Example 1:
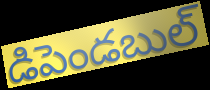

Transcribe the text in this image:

డిపెండబుల్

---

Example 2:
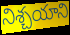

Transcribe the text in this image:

నిశ్చయాని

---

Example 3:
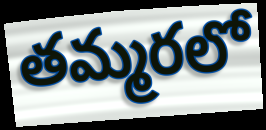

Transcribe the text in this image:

తమ్మరలో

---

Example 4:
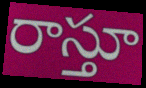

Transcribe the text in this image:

రాస్తూ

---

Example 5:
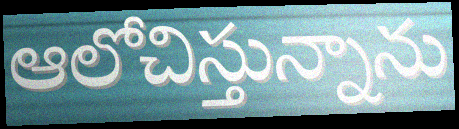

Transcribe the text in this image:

ఆలోచిస్తున్నాను